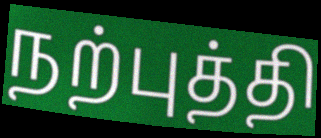
நற்புத்தி